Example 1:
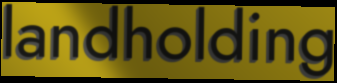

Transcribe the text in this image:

landholding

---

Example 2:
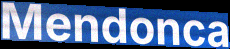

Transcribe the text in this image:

Mendonca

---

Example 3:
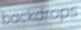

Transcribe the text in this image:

backdrops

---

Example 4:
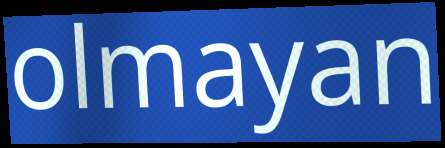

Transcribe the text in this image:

olmayan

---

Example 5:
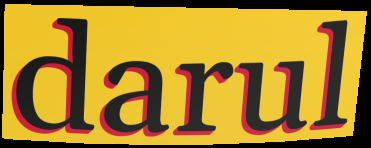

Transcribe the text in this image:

darul